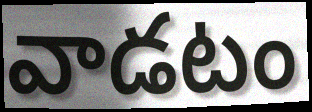
వాడటం